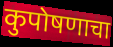
कुपोषणाचा